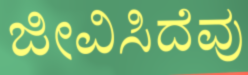
ಜೀವಿಸಿದೆವು